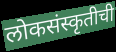
लोकसंस्कृतीची